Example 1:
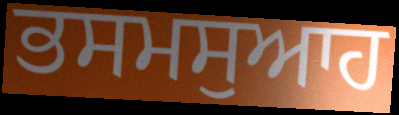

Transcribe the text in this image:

ਭਸਮਸੁਆਹ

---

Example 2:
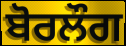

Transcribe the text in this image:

ਬੋਰਲੌਗ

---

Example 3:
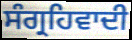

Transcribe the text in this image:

ਸੰਗ੍ਰਹਿਵਾਦੀ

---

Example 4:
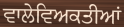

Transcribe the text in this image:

ਵਾਲੇਵਿਅਕਤੀਆਂ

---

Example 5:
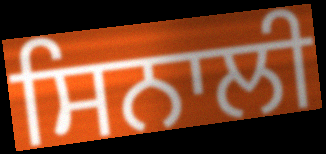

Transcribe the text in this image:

ਸਿਨਾਲੀ